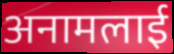
अनामलाई